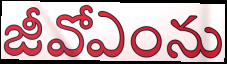
జీవోఎంను